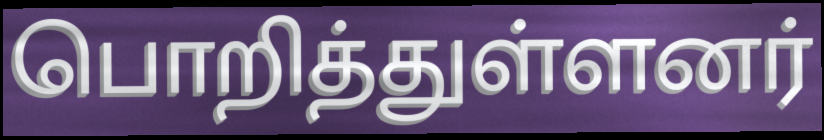
பொறித்துள்ளனர்